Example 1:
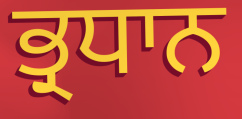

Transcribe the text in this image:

ਭ੍ਰਧਾਨ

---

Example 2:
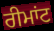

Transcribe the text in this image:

ਰੀਮਾਂਟ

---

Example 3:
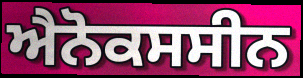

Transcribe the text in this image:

ਐਨੋਕਸਸੀਨ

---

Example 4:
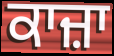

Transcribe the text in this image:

ਕਾਜ਼ਾ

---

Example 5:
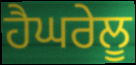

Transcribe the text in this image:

ਹੈਘਰੇਲੂ